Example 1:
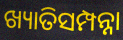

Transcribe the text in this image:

ଖ୍ୟାତିସମ୍ପନ୍ନା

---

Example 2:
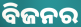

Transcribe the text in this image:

ବିଜନର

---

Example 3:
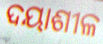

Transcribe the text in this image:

ଦୟାଶୀଳ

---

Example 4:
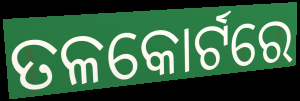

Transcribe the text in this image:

ତଳକୋର୍ଟରେ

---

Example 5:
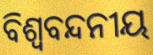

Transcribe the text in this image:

ବିଶ୍ୱବନ୍ଦନୀୟ